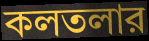
কলতলার